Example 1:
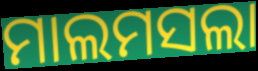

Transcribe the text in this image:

ମାଲମସଲା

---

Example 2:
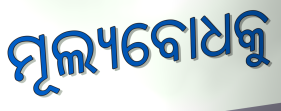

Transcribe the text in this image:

ମୂଲ୍ୟବୋଧକୁ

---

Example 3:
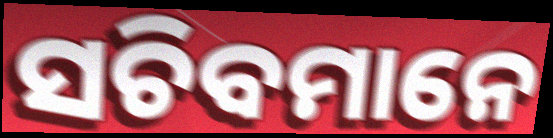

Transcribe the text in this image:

ସଚିବମାନେ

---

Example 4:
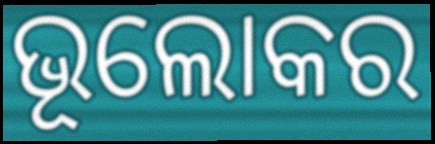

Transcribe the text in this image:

ଭୂଲୋକର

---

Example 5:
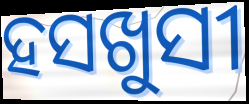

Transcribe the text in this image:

ହସଖୁସୀ